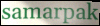
samarpak